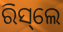
ରିସ୍‌ଲେ